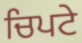
ਚਿਪਟੇ